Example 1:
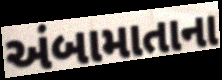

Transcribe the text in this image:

અંબામાતાના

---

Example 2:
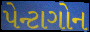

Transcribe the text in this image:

પેન્ટાગોન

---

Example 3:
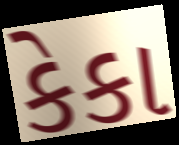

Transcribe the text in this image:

કેકા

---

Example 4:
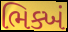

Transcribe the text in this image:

ભિક્ખં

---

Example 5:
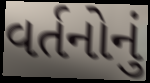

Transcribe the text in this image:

વર્તનોનું